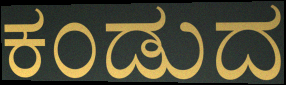
ಕಂಡುದ